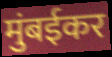
मुंबईकर